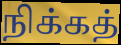
நிக்கத்